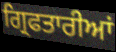
ਗ੍ਰਿਫਤਾਰੀਆਂ